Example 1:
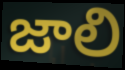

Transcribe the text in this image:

జాలి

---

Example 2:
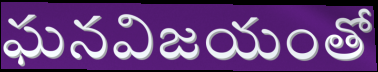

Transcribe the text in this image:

ఘనవిజయంతో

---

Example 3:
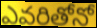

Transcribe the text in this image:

ఎవరితోనో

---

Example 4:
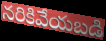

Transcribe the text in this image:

నరికివేయబడి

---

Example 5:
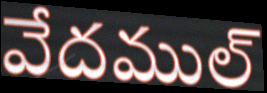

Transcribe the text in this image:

వేదముల్